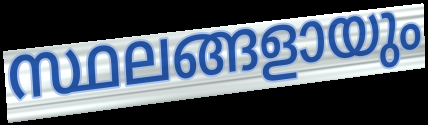
സ്ഥലങ്ങളായും